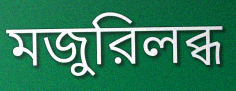
মজুরিলব্ধ